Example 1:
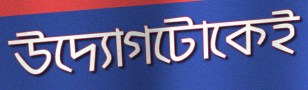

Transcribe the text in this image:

উদ্যোগটোকেই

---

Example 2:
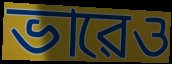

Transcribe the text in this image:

ভাৱেও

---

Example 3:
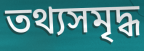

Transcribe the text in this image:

তথ্যসমৃদ্ধ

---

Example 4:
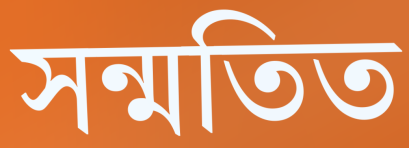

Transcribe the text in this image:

সন্মতিত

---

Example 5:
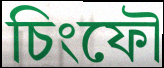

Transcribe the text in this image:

চিংফৌ